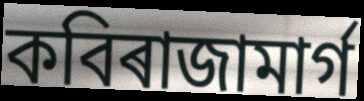
কবিৰাজামাৰ্গ